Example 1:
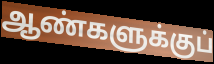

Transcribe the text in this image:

ஆண்களுக்குப்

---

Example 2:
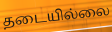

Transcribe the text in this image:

தடையில்லை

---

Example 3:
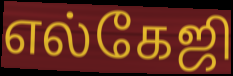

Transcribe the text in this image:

எல்கேஜி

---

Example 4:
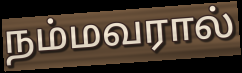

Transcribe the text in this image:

நம்மவரால்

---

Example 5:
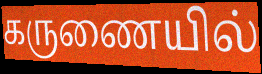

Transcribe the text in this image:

கருணையில்